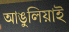
আঙুলিয়াই